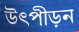
উৎপীড়ন